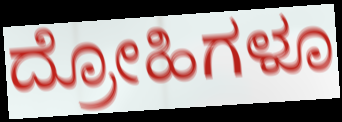
ದ್ರೋಹಿಗಳೂ